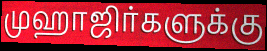
முஹாஜிர்களுக்கு